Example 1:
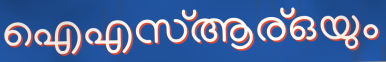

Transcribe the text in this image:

ഐഎസ്ആര്ഒയും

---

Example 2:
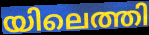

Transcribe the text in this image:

യിലെത്തി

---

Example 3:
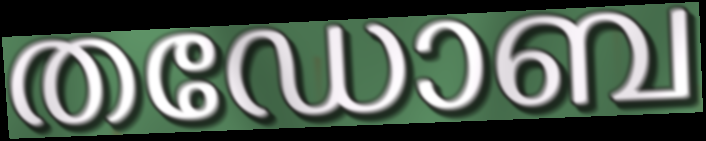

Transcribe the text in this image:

തഡോബ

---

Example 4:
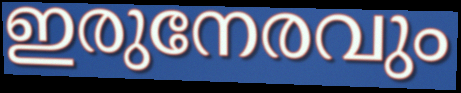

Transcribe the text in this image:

ഇരുനേരവും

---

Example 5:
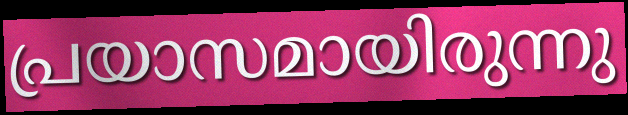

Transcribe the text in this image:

പ്രയാസമായിരുന്നു